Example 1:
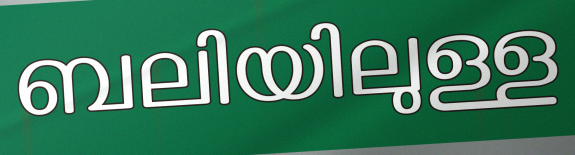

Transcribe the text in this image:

ബലിയിലുള്ള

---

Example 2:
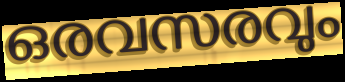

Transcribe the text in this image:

ഒരവസരവും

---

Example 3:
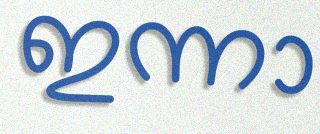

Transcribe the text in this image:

ഇന്നാ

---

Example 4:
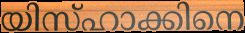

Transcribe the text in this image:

യിസ്ഹാക്കിനെ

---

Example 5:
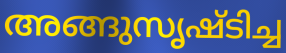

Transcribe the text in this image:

അങ്ങുസൃഷ്ടിച്ച